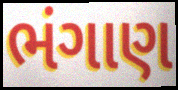
ભંગાણ